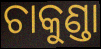
ଚାକୁଣ୍ଡା